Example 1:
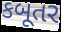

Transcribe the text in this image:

કબૂતર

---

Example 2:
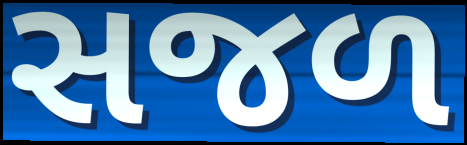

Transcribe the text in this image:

સજળ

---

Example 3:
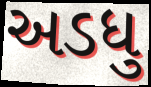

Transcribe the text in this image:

અડધુ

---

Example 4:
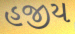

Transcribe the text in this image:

હજીય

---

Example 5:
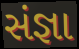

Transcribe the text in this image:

સંજ્ઞા